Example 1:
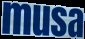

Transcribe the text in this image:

musa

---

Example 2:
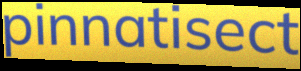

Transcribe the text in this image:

pinnatisect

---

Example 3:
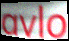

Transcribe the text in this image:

avlo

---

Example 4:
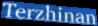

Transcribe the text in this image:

Terzhinan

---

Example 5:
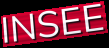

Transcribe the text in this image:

INSEE